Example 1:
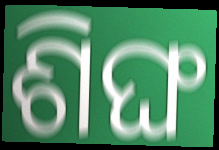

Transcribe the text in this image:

ଶିଙ୍ଘ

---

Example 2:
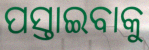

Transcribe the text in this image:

ପସ୍ତାଇବାକୁ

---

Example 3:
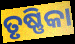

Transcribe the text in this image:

ତୃଷ୍ଣିକା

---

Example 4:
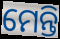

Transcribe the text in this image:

ମେନ୍ତି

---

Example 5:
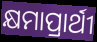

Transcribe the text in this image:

କ୍ଷମାପ୍ରାର୍ଥୀ